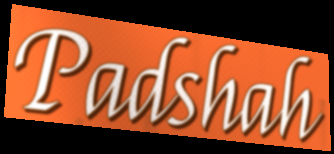
Padshah